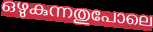
ഒഴുകുന്നതുപോലെ